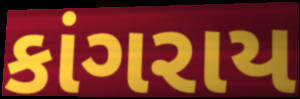
કાંગરાય